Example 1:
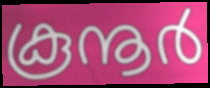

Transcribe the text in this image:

കൂനൂർ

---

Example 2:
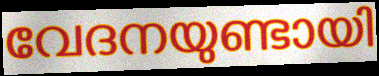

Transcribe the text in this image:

വേദനയുണ്ടായി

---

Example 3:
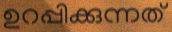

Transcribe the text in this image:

ഉറപ്പിക്കുന്നത്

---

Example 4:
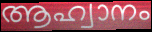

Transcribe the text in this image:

ആഹ്വാനം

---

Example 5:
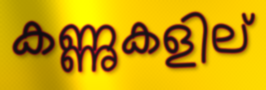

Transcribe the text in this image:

കണ്ണുകളില്